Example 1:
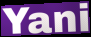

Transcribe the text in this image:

Yani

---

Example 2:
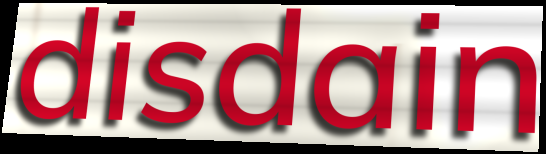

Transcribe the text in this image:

disdain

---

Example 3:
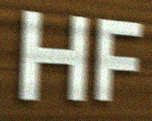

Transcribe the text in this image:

HF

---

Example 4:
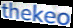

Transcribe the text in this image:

thekeo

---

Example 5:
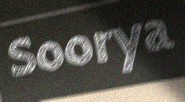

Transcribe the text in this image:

Soorya